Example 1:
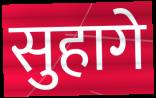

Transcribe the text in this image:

सुहागे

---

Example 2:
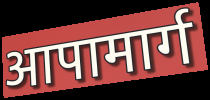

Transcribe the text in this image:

आपामार्ग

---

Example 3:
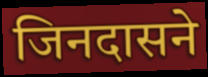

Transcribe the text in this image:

जिनदासने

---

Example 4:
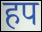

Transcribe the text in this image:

हप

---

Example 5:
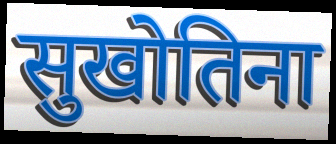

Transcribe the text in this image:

सुखोतिना